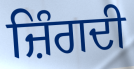
ਜ਼ਿੰਗਦੀ